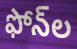
ఫోన్‌ల